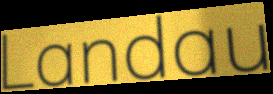
Landau